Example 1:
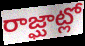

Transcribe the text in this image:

రాజ్ఘాట్లో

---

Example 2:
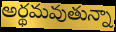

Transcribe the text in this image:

అర్థమవుతున్నా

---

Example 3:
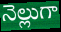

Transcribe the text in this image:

నెల్లుగా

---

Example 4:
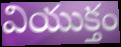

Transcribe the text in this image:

వియుక్తం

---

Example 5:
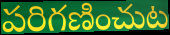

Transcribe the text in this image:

పరిగణించుట